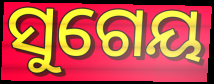
ସୁଗେୟ